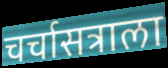
चर्चासत्राला